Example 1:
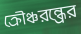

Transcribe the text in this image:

ক্রৌঞ্চরন্ধ্রের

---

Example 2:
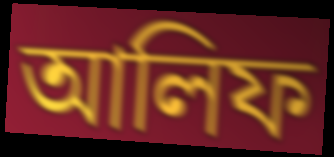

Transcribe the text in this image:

আলিফ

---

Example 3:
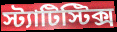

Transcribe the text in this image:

স্ট্যাটিস্টিক্স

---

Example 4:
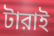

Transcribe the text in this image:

টারাই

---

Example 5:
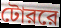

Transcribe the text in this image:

টোররে